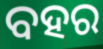
ବହର